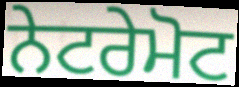
ਨੇਟਰੇਮੋਟ